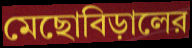
মেছোবিড়ালের